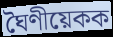
ঘৈণীয়েকক